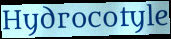
Hydrocotyle